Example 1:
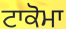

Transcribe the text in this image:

ਟਾਕੋਮਾ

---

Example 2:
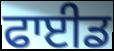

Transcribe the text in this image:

ਫਾਈਡ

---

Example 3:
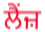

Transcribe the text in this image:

ਲੈਂਜ਼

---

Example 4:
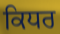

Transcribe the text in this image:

ਕਿਧਰ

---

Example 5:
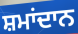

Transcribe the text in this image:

ਸ਼ਮਾਂਦਾਨ